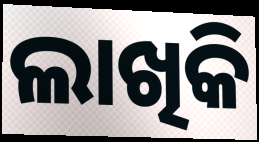
ଲାଖିକି